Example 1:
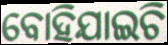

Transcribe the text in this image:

ବୋହିଯାଇଚି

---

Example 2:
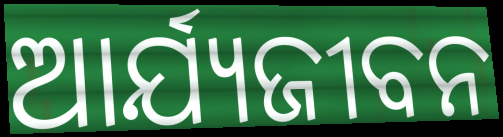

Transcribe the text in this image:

ଆର୍ଯ୍ୟଜୀବନ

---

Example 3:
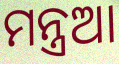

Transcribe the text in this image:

ମନ୍ତ୍ରଆ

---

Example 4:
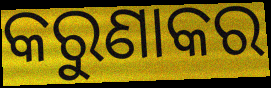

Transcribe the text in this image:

କରୁଣାକର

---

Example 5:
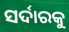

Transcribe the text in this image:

ସର୍ଦାରକୁ